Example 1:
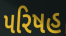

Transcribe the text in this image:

પરિષહ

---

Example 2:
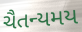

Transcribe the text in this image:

ચૈતન્યમય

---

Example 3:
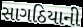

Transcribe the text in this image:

સાગઠિયાની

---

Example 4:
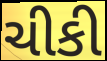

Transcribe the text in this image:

ચીકી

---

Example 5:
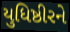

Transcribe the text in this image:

યુધિષ્ઠીરને